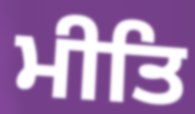
ਮੀਤਿ